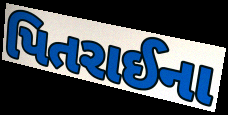
પિતરાઈના